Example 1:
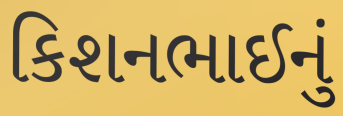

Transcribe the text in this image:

કિશનભાઈનું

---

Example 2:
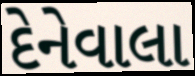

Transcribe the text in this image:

દેનેવાલા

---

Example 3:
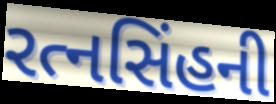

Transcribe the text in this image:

રત્નસિંહની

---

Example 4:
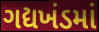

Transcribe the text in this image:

ગદ્યખંડમાં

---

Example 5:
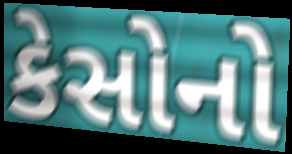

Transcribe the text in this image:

કેસોનો